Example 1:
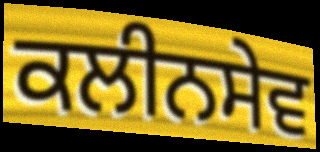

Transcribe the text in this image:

ਕਲੀਨਸੇਵ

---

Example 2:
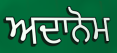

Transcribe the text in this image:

ਅਦਾਨੋਮ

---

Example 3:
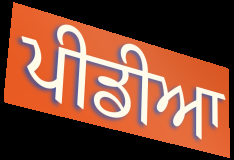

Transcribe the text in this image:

ਪੀਡੀਆ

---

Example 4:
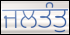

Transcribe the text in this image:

ਜਲਤੰਤੁ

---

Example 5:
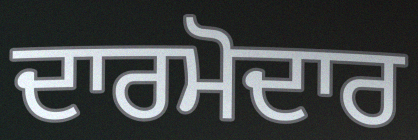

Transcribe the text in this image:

ਦਾਰਮੋਦਾਰ